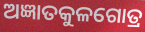
ଅଜ୍ଞାତକୁଳଗୋତ୍ର